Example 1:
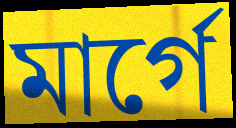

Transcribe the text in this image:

মার্গে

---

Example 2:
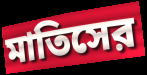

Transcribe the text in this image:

মাতিসের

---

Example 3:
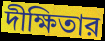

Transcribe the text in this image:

দীক্ষিতার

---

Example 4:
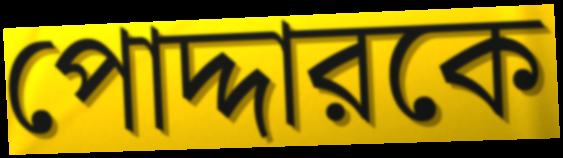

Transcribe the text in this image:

পোদ্দারকে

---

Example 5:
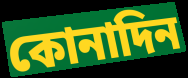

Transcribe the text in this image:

কোনাদিন